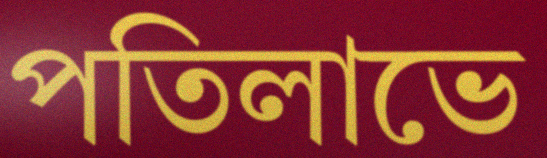
পতিলাভে